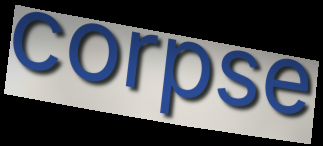
corpse